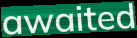
awaited